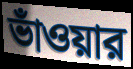
ভাঁওয়ার